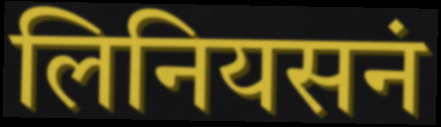
लिनियसनं